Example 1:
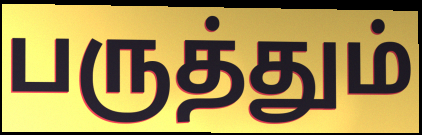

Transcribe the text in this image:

பருத்தும்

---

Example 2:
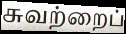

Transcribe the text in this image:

சுவற்றைப்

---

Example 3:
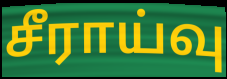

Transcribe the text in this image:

சீராய்வு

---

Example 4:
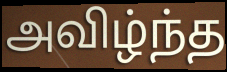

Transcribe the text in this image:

அவிழ்ந்த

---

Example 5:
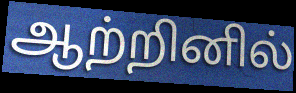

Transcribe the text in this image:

ஆற்றினில்